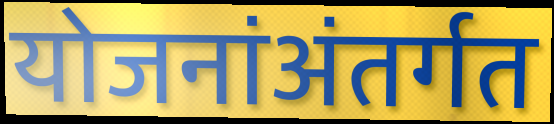
योजनांअंतर्गत